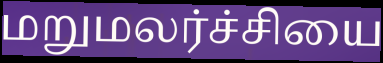
மறுமலர்ச்சியை